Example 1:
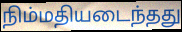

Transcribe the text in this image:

நிம்மதியடைந்தது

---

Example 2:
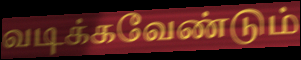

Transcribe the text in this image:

வடிக்கவேண்டும்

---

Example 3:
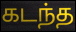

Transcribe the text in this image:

கடந்த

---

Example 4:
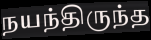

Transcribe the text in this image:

நயந்திருந்த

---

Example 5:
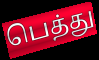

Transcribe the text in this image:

பெத்து